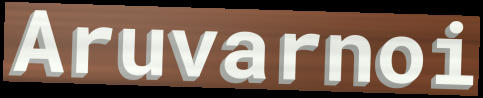
Aruvarnoi